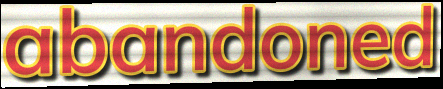
abandoned